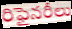
రిఫైనరీలు